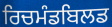
ਰਿਚਮੰਡਬਿਲਡ